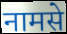
नामसे